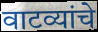
वाटव्यांचे